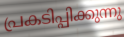
പ്രകടിപ്പിക്കുന്നു